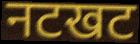
नटखट